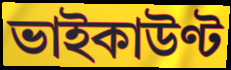
ভাইকাউণ্ট